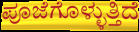
ಪೂಜೆಗೊಳ್ಳುತ್ತಿದೆ